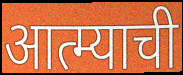
आत्म्याची